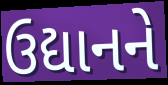
ઉદ્યાનને